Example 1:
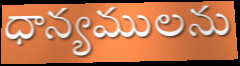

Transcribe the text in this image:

ధాన్యములను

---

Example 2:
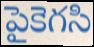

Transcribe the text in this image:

పైకెగసి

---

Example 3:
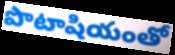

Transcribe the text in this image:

పొటాషియంతో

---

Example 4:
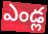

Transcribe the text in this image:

ఎండ్ల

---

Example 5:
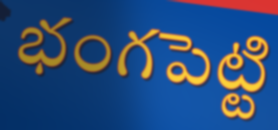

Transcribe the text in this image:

భంగపెట్టి